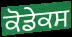
ਕੋਡੇਕਸ